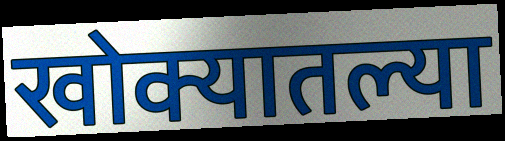
खोक्यातल्या